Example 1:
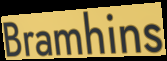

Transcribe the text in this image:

Bramhins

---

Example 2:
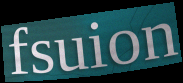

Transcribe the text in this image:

fsuion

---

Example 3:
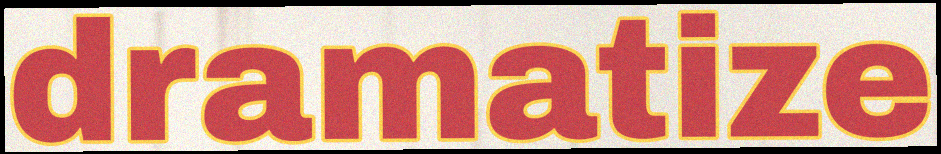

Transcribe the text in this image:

dramatize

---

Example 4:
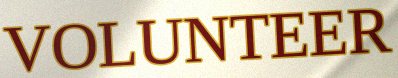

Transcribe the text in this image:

VOLUNTEER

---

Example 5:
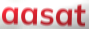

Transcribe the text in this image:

aasat